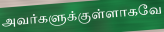
அவர்களுக்குள்ளாகவே